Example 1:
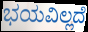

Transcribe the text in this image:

ಭಯವಿಲ್ಲದೆ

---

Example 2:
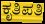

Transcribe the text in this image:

ಕೃತಿಪತಿ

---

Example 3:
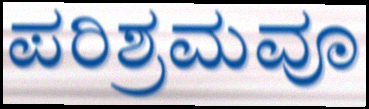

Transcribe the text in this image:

ಪರಿಶ್ರಮವೂ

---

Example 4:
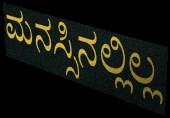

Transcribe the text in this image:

ಮನಸ್ಸಿನಲ್ಲಿಲ್ಲ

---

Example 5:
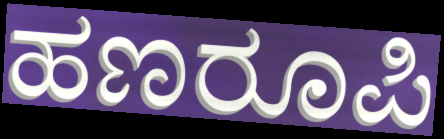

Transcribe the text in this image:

ಹಣರೂಪಿ